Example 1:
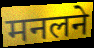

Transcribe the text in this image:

मनलने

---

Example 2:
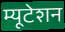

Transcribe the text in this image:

म्यूटेशन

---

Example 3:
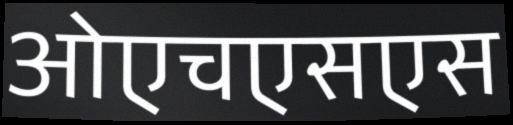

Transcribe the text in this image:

ओएचएसएस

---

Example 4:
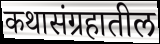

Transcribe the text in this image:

कथासंग्रहातील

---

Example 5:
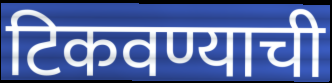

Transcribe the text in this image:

टिकवण्याची